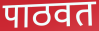
पाठवत